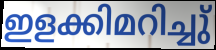
ഇളക്കിമറിച്ചു്